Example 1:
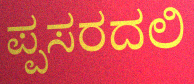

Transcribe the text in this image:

ಪ್ಪಸರದಲಿ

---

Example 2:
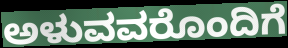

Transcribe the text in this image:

ಅಳುವವರೊಂದಿಗೆ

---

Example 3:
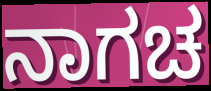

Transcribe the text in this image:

ನಾಗಚ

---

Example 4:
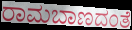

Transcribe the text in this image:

ರಾಮಬಾಣದಂತೆ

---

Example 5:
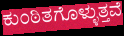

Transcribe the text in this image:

ಕುಂಠಿತಗೊಳ್ಳುತ್ತವೆ